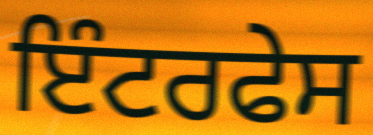
ਇੰਟਰਫੇਸ